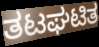
ತಟಘಟಿತ